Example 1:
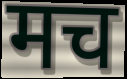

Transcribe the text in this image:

मच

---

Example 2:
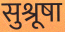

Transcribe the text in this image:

सुश्रूषा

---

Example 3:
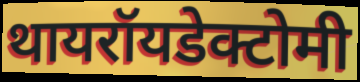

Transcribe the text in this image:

थायरॉयडेक्टोमी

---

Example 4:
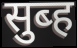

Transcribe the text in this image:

सुब्ह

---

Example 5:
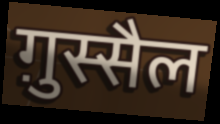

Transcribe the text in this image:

ग़ुस्सैल